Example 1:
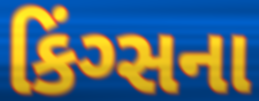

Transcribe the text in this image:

કિંગ્સના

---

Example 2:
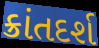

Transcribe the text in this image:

ક્રાંતદર્શ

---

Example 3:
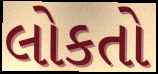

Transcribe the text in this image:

લોકતો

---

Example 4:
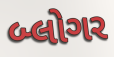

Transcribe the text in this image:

બ્લોગર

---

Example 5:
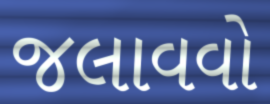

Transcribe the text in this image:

જલાવવો